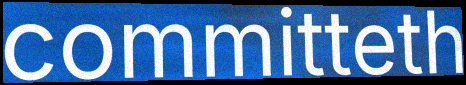
committeth